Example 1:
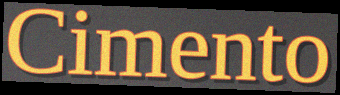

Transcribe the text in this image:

Cimento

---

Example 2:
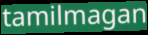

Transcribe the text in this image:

tamilmagan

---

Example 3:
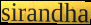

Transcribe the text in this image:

sirandha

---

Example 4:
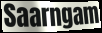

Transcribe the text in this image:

Saarngam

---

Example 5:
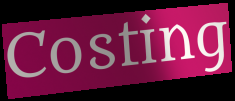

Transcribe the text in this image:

Costing